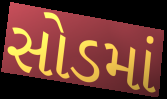
સોડમાં